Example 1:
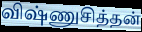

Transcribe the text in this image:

விஷ்ணுசித்தன்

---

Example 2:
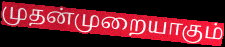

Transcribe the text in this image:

முதன்முறையாகும்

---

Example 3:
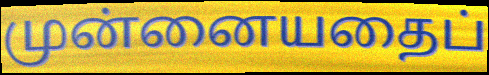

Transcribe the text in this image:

முன்னையதைப்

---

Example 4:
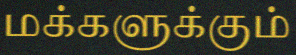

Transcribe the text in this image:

மக்களுக்கும்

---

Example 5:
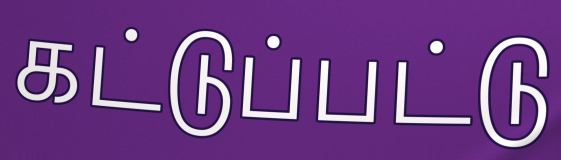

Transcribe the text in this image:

கட்டுப்பட்டு